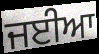
ਜਈਆ